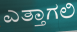
ಎತ್ತಾಗಲಿ